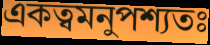
একত্বমনুপশ্যতঃ